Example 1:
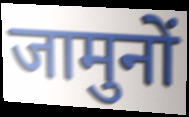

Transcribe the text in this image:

जामुनों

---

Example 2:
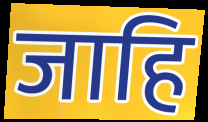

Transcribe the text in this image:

जाहि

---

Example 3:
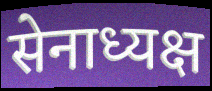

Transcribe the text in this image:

सेनाध्यक्ष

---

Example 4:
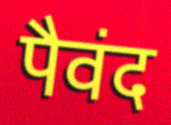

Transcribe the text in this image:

पैवंद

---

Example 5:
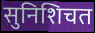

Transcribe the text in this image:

सुनिशिचत